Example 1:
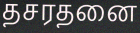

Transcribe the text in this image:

தசரதனை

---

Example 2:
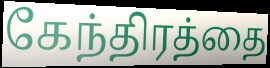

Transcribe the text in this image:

கேந்திரத்தை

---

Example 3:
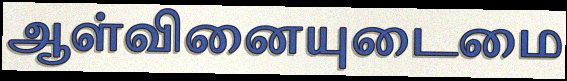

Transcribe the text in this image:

ஆள்வினையுடைமை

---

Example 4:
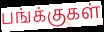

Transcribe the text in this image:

பங்க்குகள்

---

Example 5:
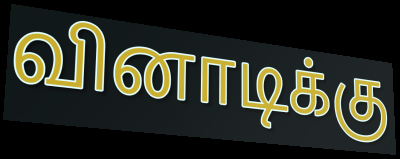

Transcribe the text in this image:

வினாடிக்கு